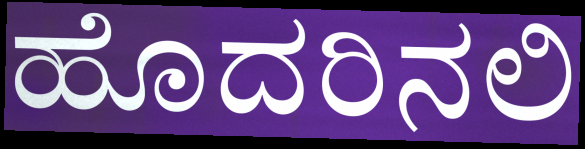
ಹೊದರಿನಲಿ